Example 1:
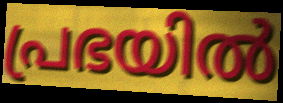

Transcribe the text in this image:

പ്രഭയിൽ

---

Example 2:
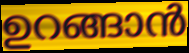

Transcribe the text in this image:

ഉറങ്ങാൻ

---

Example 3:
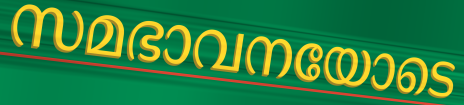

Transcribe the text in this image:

സമഭാവനയോടെ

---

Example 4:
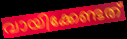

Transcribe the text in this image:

വായിക്കേണ്ടത്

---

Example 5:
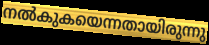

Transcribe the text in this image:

നൽകുകയെന്നതായിരുന്നു